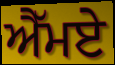
ਐੱਮਏ